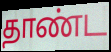
தாண்ட